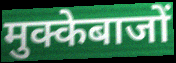
मुक्केबाजों